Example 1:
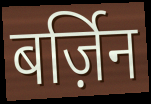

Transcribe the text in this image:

बर्ज़िन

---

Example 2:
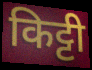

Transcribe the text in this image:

किट्टी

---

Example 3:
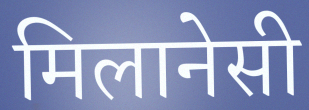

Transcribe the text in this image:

मिलानेसी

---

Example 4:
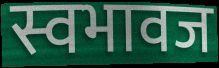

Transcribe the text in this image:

स्वभावज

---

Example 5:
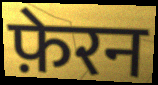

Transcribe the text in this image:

फ़ेरन